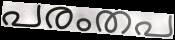
പരംതപ